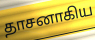
தாசனாகிய